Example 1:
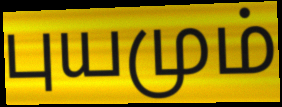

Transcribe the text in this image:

புயமும்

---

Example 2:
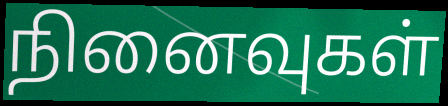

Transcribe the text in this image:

நினைவுகள்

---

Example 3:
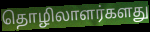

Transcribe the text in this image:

தொழிலாளர்களது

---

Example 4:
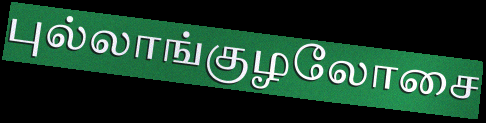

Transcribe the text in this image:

புல்லாங்குழலோசை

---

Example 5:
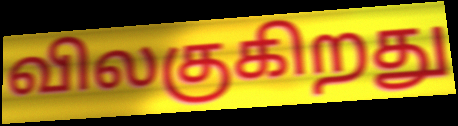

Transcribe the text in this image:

விலகுகிறது